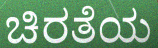
ಚಿರತೆಯ